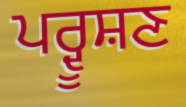
ਪਰ੍ਦੂਸ਼ਣ